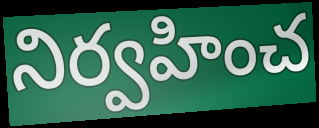
నిర్వహించ